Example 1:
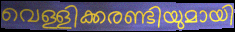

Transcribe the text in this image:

വെള്ളിക്കരണ്ടിയുമായി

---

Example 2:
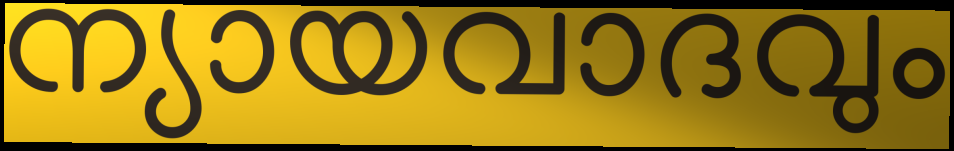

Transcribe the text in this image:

ന്യായവാദവും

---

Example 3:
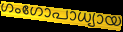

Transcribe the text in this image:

ഗംഗോപാധ്യായ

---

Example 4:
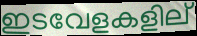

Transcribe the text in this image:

ഇടവേളകളില്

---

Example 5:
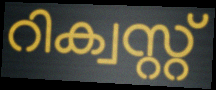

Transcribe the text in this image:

റിക്വസ്റ്റ്